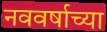
नववर्षाच्या